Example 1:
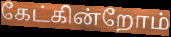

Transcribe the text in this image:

கேட்கின்றோம்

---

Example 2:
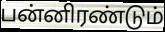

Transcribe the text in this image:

பன்னிரண்டும்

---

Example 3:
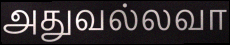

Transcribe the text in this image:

அதுவல்லவா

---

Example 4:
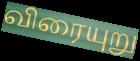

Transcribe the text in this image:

விரையுறு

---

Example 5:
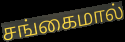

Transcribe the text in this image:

சங்கைமால்